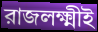
রাজলক্ষ্মীই